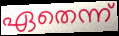
ഏതെന്ന്